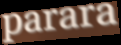
parara